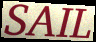
SAIL